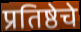
प्रतिष्ठेचे